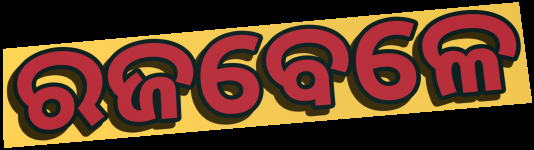
ରଜବେଳେ